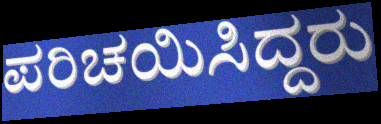
ಪರಿಚಯಿಸಿದ್ದರು